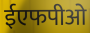
ईएफपीओ